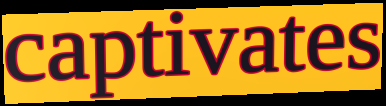
captivates